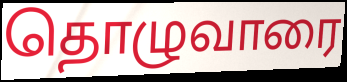
தொழுவாரை